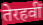
तेरहवीं